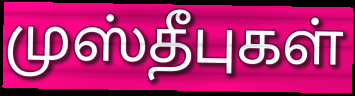
முஸ்தீபுகள்